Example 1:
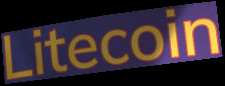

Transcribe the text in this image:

Litecoin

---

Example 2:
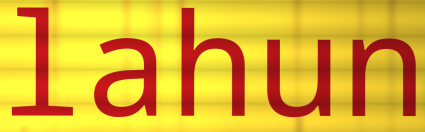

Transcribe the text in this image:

lahun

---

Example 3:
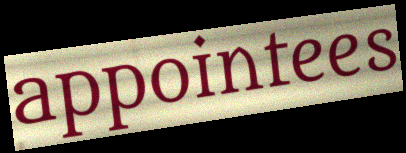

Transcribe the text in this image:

appointees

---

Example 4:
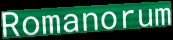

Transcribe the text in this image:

Romanorum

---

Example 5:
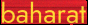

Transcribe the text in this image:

baharat